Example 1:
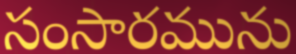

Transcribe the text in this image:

సంసారమును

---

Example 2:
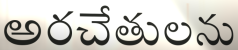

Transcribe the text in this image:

అరచేతులను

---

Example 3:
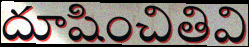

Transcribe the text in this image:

దూషించితివి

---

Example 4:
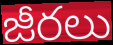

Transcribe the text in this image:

జీరలు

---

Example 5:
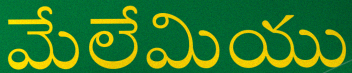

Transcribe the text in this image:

మేలేమియు